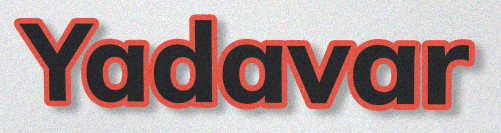
Yadavar